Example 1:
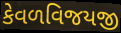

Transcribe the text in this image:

કેવળવિજયજી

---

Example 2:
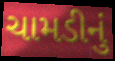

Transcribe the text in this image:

ચામડીનું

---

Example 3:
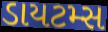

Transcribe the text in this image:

ડાયટમ્સ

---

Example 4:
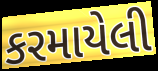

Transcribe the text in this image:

કરમાયેલી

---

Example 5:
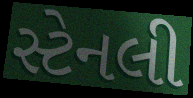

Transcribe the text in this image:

સ્ટેનલી